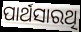
ପାର୍ଥସାରଥି